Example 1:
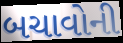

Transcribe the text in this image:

બચાવોની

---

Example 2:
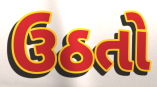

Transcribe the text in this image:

ઉઠતો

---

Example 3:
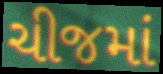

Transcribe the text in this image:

ચીજમાં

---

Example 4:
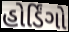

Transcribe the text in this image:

હોર્ડિંગો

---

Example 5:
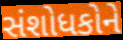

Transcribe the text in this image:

સંશોધકોને